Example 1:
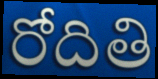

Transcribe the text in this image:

రోదితి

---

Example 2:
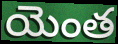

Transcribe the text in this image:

యెంత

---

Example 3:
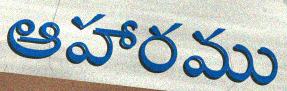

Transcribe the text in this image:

ఆహారము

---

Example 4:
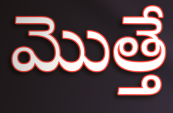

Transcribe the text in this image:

మొత్తే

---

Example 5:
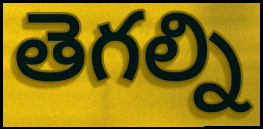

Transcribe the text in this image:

తెగల్ని